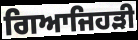
ਗਿਆਜਿਹੜੀ